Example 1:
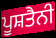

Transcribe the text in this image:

ਪੂਸ਼ਤੈਨੀ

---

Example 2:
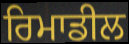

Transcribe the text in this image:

ਰਿਮਾਡੀਲ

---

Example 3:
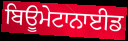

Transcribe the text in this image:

ਬਿਊਮੇਟਾਨਾਈਡ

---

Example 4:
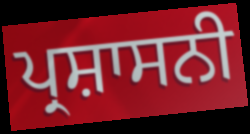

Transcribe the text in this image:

ਪ੍ਰਸ਼ਾਸਨੀ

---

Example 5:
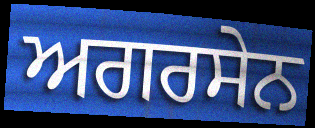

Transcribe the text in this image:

ਅਗਰਸੇਨ